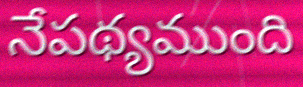
నేపథ్యముంది